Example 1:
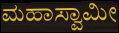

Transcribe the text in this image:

ಮಹಾಸ್ವಾಮೀ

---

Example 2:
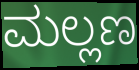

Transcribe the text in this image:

ಮಲ್ಲಣ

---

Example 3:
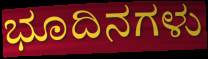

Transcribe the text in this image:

ಭೂದಿನಗಳು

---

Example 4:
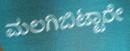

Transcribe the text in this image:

ಮಲಗಿಬಿಟ್ಟಾರೇ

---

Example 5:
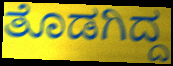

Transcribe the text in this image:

ತೊಡಗಿದ್ದ